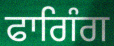
ਫਾਗਿੰਗ